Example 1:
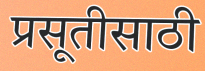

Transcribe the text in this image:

प्रसूतीसाठी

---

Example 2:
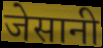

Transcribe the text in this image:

जेसानी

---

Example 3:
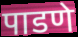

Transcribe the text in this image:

पाडणे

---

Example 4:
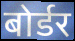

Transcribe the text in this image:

बोर्डर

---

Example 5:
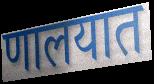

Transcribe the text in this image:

णालयात